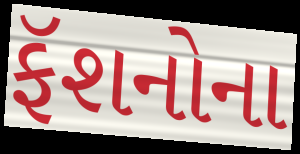
ફૅશનોના